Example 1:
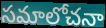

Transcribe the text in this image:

సమాలోచనా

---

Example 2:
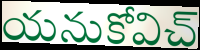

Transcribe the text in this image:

యనుకోవిచ్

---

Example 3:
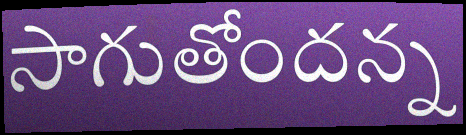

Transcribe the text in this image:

సాగుతోందన్న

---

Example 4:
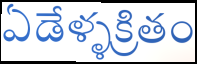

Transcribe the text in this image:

ఏడేళ్ళక్రితం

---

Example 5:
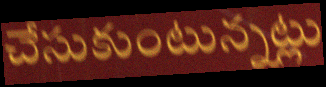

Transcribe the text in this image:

చేసుకుంటున్నట్లు